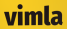
vimla